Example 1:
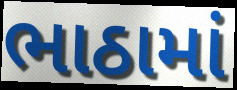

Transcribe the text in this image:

ભાઠામાં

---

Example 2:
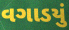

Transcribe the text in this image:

વગાડયું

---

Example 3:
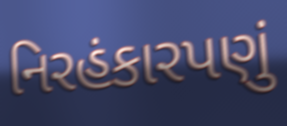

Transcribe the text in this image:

નિરહંકારપણું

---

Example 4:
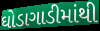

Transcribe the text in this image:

ઘોડાગાડીમાંથી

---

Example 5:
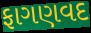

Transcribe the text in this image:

ફાગણવદ